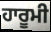
ਹਾਰੂਮੀ